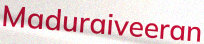
Maduraiveeran